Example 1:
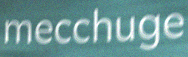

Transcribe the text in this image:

mecchuge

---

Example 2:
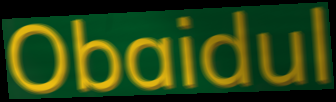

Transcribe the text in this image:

Obaidul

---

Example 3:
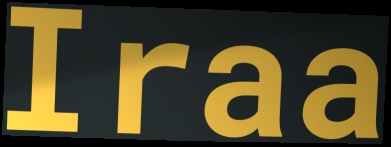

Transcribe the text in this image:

Iraa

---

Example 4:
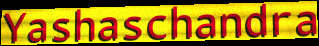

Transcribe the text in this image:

Yashaschandra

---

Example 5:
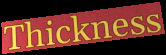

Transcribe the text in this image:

Thickness